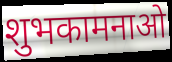
शुभकामनाओ